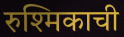
रुश्मिकाची